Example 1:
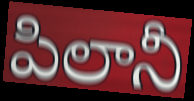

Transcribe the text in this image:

పిలానీ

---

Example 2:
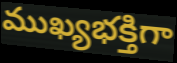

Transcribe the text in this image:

ముఖ్యభక్తిగా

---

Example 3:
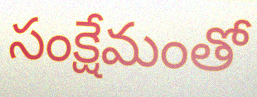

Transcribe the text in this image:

సంక్షేమంతో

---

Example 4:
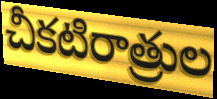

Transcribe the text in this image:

చీకటిరాత్రుల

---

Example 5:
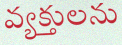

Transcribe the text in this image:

వ్యక్తులను